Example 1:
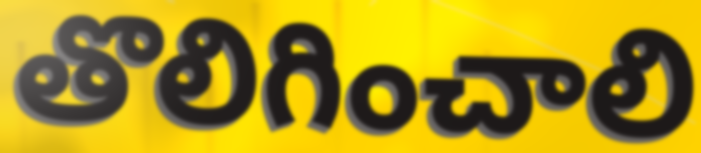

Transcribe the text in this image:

తొలిగించాలి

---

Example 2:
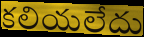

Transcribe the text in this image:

కలియలేదు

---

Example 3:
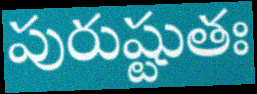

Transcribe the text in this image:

పురుష్టుతః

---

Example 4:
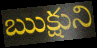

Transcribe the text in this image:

ఋక్షుని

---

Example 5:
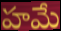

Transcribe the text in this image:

హమే